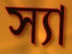
স্যা